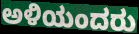
ಅಳಿಯಂದರು